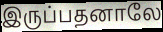
இருப்பதனாலே